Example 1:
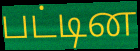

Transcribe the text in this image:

பட்டின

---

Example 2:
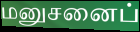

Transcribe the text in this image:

மனுசனைப்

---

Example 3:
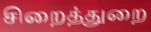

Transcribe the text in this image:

சிறைத்துறை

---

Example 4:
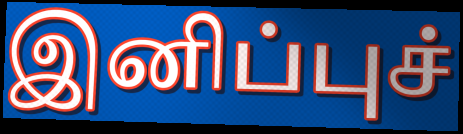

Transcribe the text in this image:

இனிப்புச்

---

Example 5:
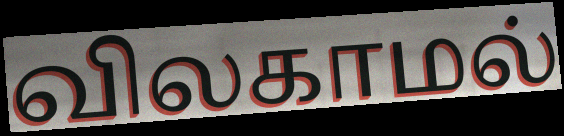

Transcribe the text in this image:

விலகாமல்